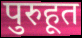
पुरुहूत